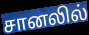
சானலில்